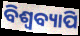
ବିଶ୍ବବ୍ୟାପି